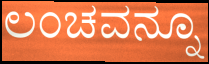
ಲಂಚವನ್ನೂ